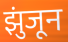
झुंजून